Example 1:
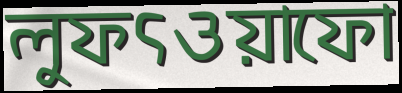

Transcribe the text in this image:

লুফৎওয়াফো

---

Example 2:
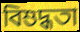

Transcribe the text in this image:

বিশুদ্ধতা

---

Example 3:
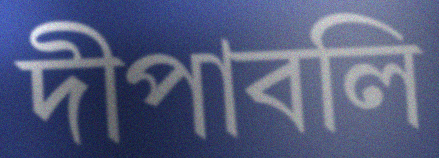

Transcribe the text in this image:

দীপাবলি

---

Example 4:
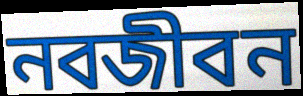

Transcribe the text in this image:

নবজীবন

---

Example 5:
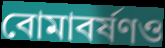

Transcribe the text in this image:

বোমাবর্ষণও